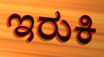
ಇರುಕಿ